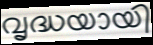
വൃദ്ധയായി